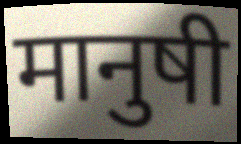
मानुषी